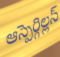
ఆస్పెర్గిల్లస్